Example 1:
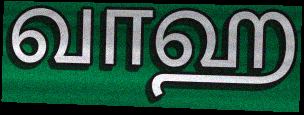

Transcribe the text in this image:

வாஹ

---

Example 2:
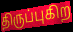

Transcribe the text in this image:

திருப்புகிற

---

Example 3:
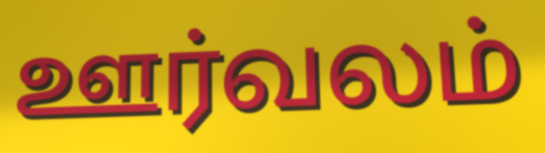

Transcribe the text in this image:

ஊர்வலம்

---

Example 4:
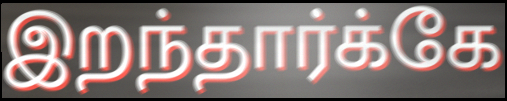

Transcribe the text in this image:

இறந்தார்க்கே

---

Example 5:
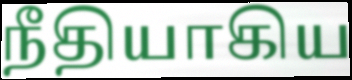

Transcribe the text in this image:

நீதியாகிய